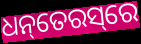
ଧନ୍‌ତେରସ୍‌ରେ